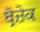
ਬ੍ਰੋਜ਼ੇਕ